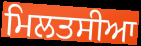
ਮਿਲਤਸੀਆ